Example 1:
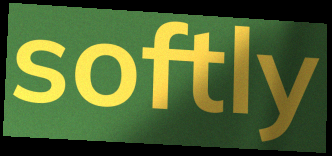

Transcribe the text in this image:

softly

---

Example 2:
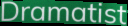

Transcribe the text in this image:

Dramatist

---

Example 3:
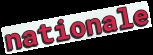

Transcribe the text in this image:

nationale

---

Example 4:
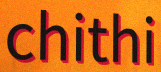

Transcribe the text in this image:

chithi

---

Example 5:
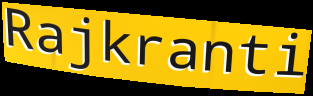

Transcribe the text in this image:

Rajkranti